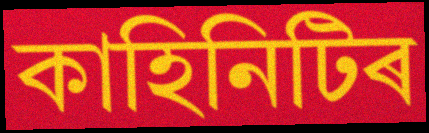
কাহিনিটিৰ